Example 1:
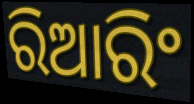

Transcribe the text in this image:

ରିଆରିଂ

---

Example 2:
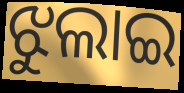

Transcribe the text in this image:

ଝୁଲାଇ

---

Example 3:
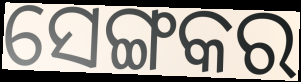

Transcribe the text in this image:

ସେଙ୍ଗକର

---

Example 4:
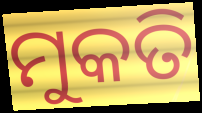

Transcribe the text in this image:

ମୁକତି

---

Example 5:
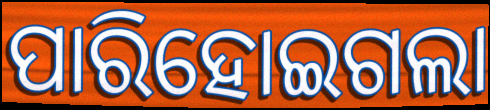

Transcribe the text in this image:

ପାରିହୋଇଗଲା